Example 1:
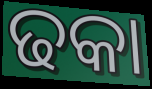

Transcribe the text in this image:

ଢକା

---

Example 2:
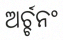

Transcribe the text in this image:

ଅର୍ଚ୍ଚନଂ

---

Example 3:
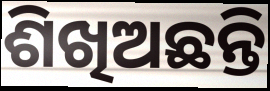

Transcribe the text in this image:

ଶିଖିଅଛନ୍ତି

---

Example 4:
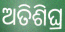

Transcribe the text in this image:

ଅତିଶିଘ୍ର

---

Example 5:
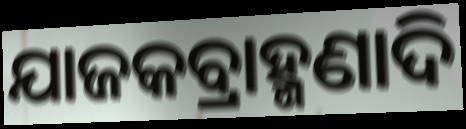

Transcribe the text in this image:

ଯାଜକବ୍ରାହ୍ମଣାଦି